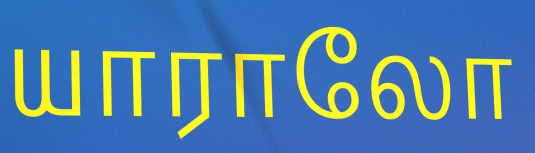
யாராலோ